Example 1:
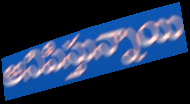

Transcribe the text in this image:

అనిపిస్తున్నాయి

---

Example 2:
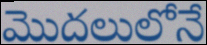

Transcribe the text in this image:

మొదలులోనే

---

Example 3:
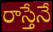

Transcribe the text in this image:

రాస్తేనే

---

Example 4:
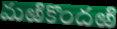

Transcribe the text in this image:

మఱికొందఱి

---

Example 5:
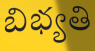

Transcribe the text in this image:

బిభ్యతి